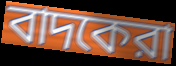
বাদকেরা